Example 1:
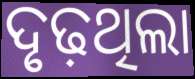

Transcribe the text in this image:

ଦୃଢ଼ଥିଲା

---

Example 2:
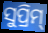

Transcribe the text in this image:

ସୁପ୍ରିମ୍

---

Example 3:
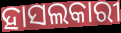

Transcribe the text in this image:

ହାସଲକାରୀ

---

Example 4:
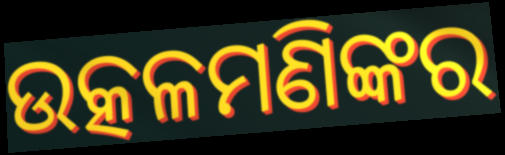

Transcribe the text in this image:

ଉତ୍କଳମଣିଙ୍କର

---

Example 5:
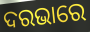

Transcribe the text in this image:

ଦରଭାରେ